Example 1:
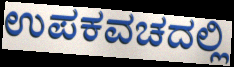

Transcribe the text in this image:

ಉಪಕವಚದಲ್ಲಿ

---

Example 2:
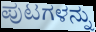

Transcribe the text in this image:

ಪುಟಗಳನ್ನು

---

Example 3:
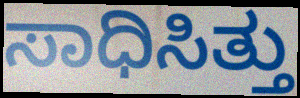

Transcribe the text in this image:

ಸಾಧಿಸಿತ್ತು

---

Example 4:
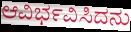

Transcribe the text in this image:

ಆವಿರ್ಭವಿಸಿದನು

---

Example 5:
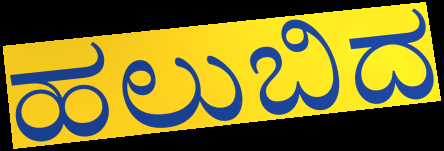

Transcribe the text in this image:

ಹಲುಬಿದ